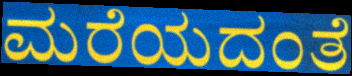
ಮರೆಯದಂತೆ